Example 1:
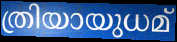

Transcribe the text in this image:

ത്രിയായുധമ്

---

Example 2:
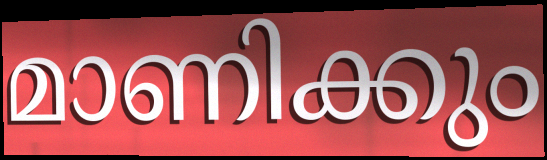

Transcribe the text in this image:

മാണിക്കും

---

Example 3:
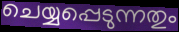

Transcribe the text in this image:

ചെയ്യപ്പെടുന്നതും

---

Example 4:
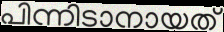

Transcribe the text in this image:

പിന്നിടാനായത്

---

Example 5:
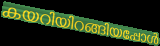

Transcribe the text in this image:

കയറിയിറങ്ങിയപ്പോൾ